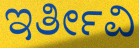
ಇರ್ತೀವಿ